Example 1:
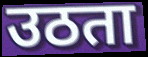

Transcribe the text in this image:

उठता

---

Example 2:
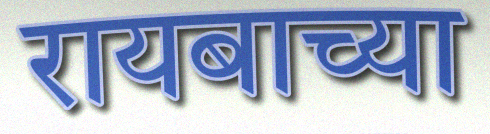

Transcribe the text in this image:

रायबाच्या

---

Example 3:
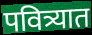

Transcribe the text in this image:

पवित्र्यात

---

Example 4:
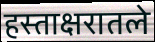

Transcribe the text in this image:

हस्ताक्षरातले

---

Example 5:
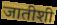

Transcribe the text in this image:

जातीशी